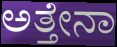
ಅತ್ತೇನಾ